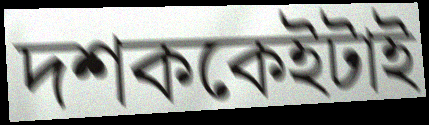
দশককেইটাই